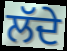
ਲੱਦੇ